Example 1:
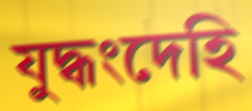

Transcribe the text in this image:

যুদ্ধংদেহি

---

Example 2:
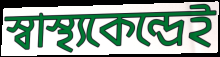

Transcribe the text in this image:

স্বাস্থ্যকেন্দ্রেই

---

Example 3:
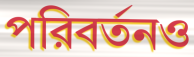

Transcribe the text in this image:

পরিবর্তনও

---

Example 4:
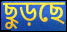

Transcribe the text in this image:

ছুড়ছে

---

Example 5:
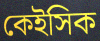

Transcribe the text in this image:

কেইসিক